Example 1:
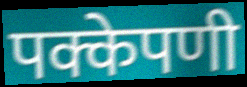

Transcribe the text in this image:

पक्केपणी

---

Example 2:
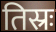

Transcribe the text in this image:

तिस्रः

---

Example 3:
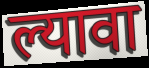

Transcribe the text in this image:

ल्यावा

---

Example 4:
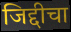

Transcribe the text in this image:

जिद्दीचा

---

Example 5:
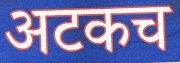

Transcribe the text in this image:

अटकच